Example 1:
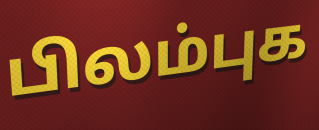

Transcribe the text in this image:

பிலம்புக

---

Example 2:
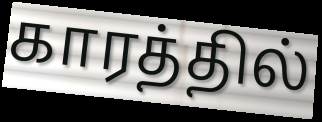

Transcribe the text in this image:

காரத்தில்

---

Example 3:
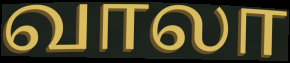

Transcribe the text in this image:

வாலா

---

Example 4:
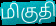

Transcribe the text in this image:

மிகுதி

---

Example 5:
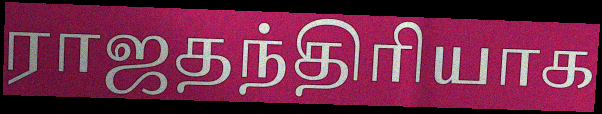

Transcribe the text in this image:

ராஜதந்திரியாக